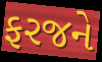
ફરજને